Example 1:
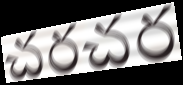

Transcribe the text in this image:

చరచర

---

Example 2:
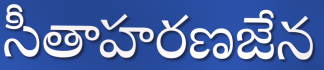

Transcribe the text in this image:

సీతాహరణజేన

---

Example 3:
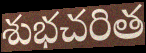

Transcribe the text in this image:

శుభచరిత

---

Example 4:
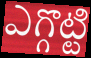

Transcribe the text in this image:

ఎగ్గొట్టి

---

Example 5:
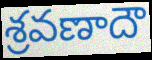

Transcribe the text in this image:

శ్రవణాదౌ